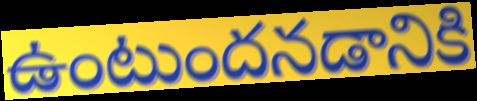
ఉంటుందనడానికి